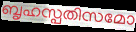
ബൃഹസ്പതിസമോ